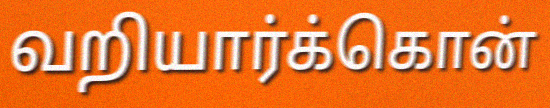
வறியார்க்கொன்